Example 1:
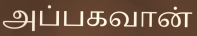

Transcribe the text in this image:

அப்பகவான்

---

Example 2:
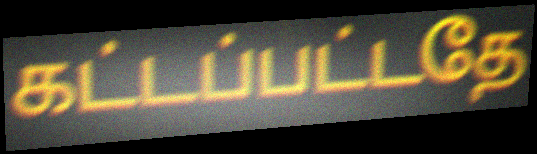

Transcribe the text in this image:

கட்டப்பட்டதே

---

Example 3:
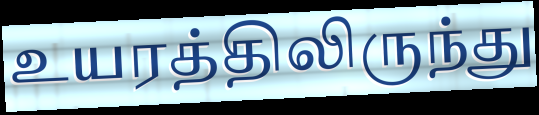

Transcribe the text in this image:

உயரத்திலிருந்து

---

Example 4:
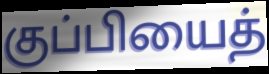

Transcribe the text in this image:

குப்பியைத்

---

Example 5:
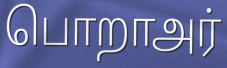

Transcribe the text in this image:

பொறாஅர்